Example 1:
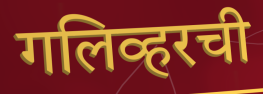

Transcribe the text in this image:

गलिव्हरची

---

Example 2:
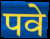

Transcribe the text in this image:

पवे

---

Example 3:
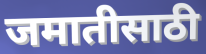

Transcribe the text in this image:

जमातीसाठी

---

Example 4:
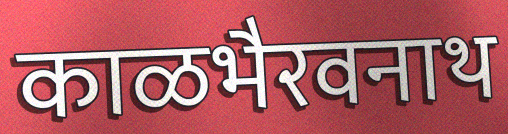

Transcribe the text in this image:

काळभैरवनाथ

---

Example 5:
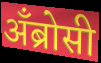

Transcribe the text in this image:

अँब्रोसी